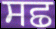
ਸਛ